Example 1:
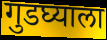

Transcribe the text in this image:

गुडघ्याला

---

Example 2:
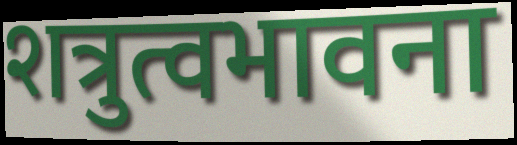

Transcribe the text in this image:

शत्रुत्वभावना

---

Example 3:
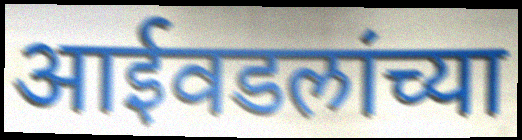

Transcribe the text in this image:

आईवडलांच्या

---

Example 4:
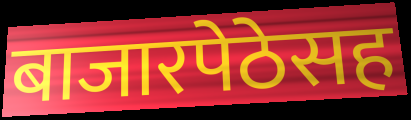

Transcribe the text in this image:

बाजारपेठेसह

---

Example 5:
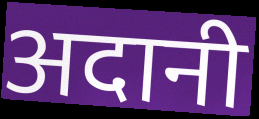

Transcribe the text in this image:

अदानी